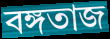
বঙ্গতাজ